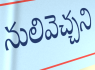
నులివెచ్చని